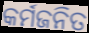
କର୍ମଜନିତ